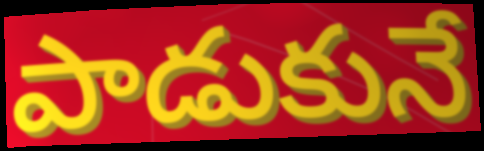
పాడుకునే